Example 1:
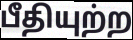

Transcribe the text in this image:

பீதியுற்ற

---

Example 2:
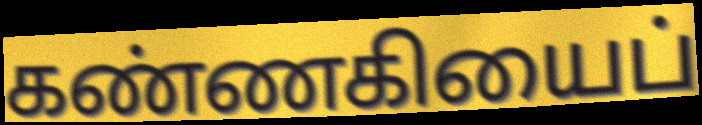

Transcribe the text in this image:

கண்ணகியைப்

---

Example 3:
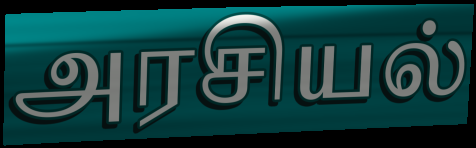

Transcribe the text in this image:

அரசியல்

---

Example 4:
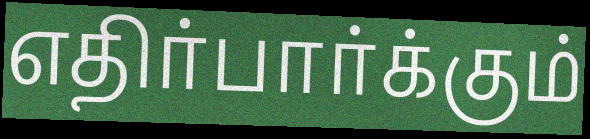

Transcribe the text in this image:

எதிர்பார்க்கும்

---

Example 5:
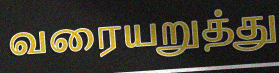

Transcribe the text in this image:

வரையறுத்து